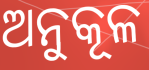
ଅନୁକୂଳ